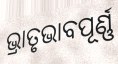
ଭ୍ରାତୃଭାବପୂର୍ଣ୍ଣ